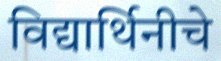
विद्यार्थिनीचे